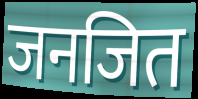
जनजित